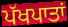
ਪੱਖਪਾਤਾਂ